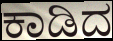
ಕಾಡಿದ